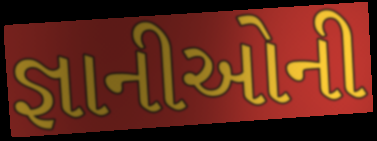
જ્ઞાનીઓની